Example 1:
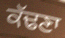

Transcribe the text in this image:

ਕੱਢਣਾ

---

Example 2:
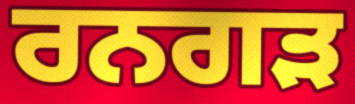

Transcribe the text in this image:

ਰਨਗੜ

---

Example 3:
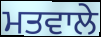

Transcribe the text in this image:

ਮਤਵਾਲੇ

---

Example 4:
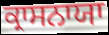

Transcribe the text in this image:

ਕ੍ਰਾਸਨਾਯਾ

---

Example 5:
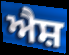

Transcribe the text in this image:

ਐਸ਼